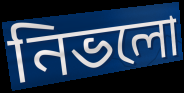
নিভলো